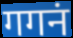
गगनं